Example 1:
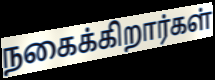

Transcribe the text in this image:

நகைக்கிறார்கள்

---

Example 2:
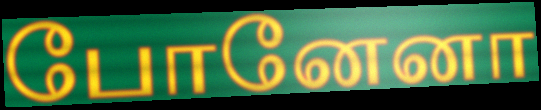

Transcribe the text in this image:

போனேனா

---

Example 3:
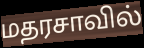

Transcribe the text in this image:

மதரசாவில்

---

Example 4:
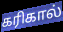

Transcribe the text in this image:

கரிகால்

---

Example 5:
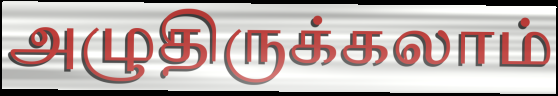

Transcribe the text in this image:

அழுதிருக்கலாம்